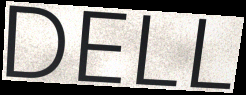
DELL